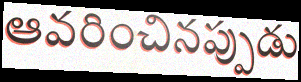
ఆవరించినప్పుడు